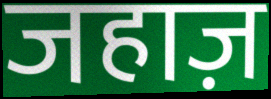
जहाज़